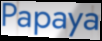
Papaya